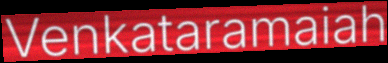
Venkataramaiah